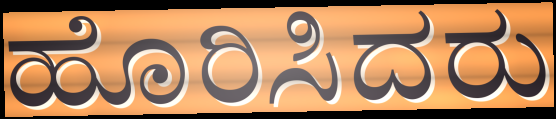
ಹೊರಿಸಿದರು